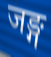
जङ्ग